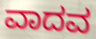
ವಾದವ